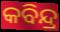
କବିନ୍ଦ୍ର